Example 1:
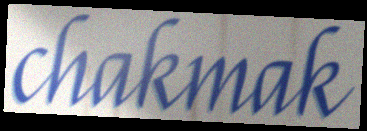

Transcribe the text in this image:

chakmak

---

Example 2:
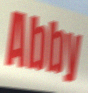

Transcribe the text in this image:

Abby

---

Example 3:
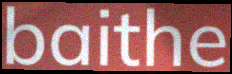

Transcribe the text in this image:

baithe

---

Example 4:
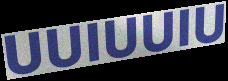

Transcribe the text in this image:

UUIUUIU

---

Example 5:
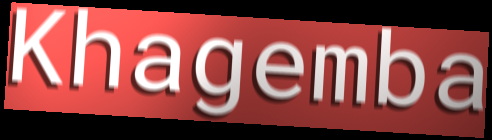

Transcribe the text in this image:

Khagemba